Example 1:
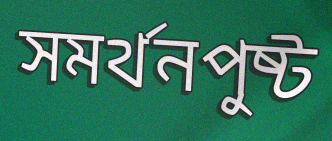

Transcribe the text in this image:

সমর্থনপুষ্ট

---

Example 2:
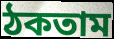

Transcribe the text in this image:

ঠকতাম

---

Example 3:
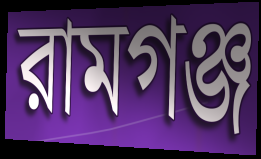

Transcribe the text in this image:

রামগঞ্জ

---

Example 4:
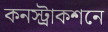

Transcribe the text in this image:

কনস্ট্রাকশনে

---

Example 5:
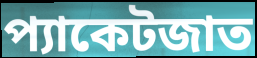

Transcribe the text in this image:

প্যাকেটজাত